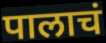
पालाचं